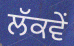
ਲੱਕਵੇਂ